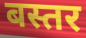
बस्तर